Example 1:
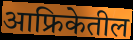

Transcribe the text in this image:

आफ्रिकेतील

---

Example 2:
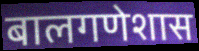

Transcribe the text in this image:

बालगणेशास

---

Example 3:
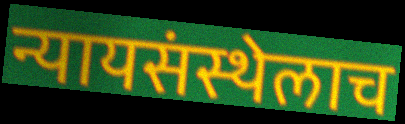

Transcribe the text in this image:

न्यायसंस्थेलाच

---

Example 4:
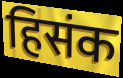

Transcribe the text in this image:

हिसंक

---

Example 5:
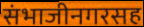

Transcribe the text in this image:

संभाजीनगरसह